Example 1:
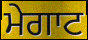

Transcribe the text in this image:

ਮੇਗਾਟ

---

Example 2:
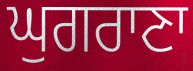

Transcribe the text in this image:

ਘੁਗਰਾਣਾ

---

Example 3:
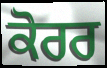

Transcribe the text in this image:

ਕੋਰਰ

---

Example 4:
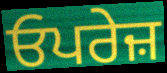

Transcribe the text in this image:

ਓਪਰੇਜ਼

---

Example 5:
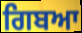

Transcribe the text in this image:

ਗਿਬਆ